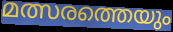
മത്സരത്തെയും